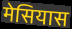
मेसियास